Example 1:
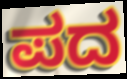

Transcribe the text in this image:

ಪದ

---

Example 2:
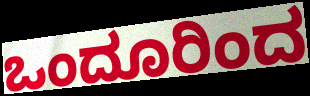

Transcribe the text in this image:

ಒಂದೂರಿಂದ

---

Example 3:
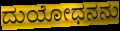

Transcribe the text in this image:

ದುಯೋಧನನು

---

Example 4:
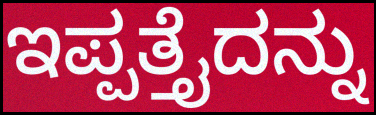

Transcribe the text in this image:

ಇಪ್ಪತ್ತೈದನ್ನು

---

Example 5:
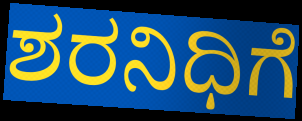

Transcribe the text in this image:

ಶರನಿಧಿಗೆ